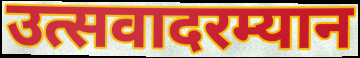
उत्सवादरम्यान